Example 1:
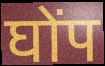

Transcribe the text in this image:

घोंप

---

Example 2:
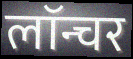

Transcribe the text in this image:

लॉन्चर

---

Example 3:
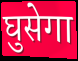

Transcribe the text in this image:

घुसेगा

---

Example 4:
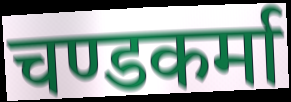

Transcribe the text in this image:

चण्डकर्मा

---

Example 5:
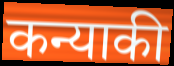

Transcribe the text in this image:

कन्याकी